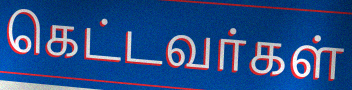
கெட்டவர்கள்